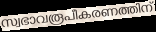
സ്വഭാവരൂപീകരണത്തിന്